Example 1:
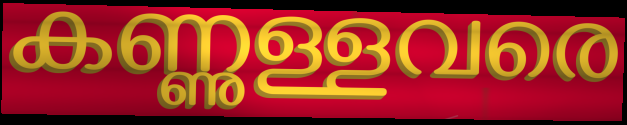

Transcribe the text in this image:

കണ്ണുള്ളവരെ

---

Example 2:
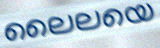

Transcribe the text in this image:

ലൈലയെ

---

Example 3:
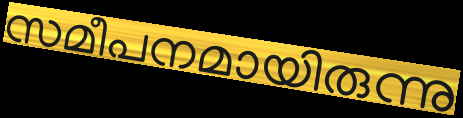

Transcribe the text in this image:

സമീപനമായിരുന്നു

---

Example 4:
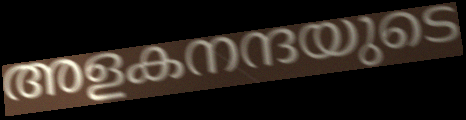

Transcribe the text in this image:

അളകനന്ദയുടെ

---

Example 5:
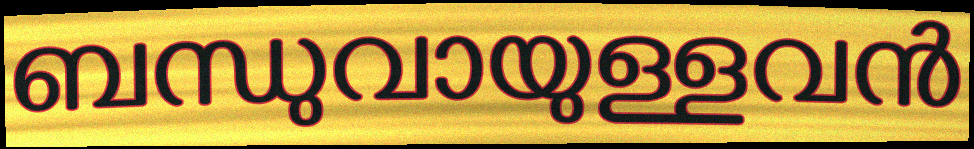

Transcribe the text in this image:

ബന്ധുവായുള്ളവൻ